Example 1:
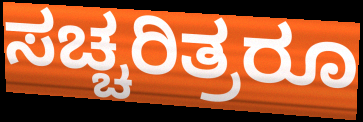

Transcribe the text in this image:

ಸಚ್ಚರಿತ್ರರೂ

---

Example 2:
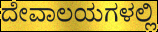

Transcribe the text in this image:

ದೇವಾಲಯಗಳಲ್ಲಿ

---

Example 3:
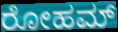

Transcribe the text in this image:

ರೋಹಮ್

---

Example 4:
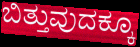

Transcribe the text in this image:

ಬಿತ್ತುವುದಕ್ಕೂ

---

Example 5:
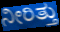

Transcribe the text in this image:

ನೀರಿತ್ತು